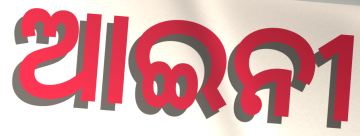
ଆଇନୀ